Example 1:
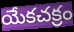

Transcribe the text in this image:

యేకచక్రం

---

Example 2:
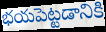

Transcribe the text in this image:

భయపెట్టడానికి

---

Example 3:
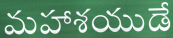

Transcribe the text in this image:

మహాశయుడే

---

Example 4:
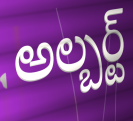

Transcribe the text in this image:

అల్బర్ట్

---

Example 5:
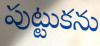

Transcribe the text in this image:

పుట్టుకను